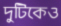
দুটিকেও